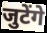
जुटेंगे